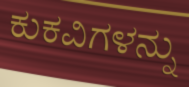
ಕುಕವಿಗಳನ್ನು